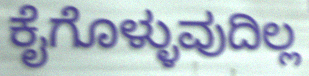
ಕೈಗೊಳ್ಳುವುದಿಲ್ಲ